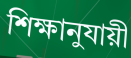
শিক্ষানুযায়ী